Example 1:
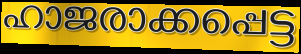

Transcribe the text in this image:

ഹാജരാക്കപ്പെട്ട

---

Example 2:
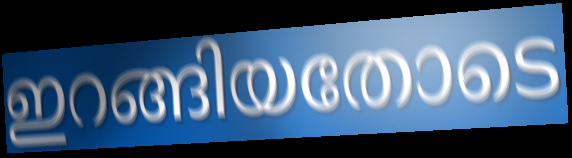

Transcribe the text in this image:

ഇറങ്ങിയതോടെ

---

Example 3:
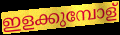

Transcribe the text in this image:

ഇളക്കുമ്പോള്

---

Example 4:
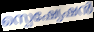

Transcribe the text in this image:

സ്പെഷ്യേഷൻ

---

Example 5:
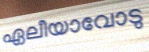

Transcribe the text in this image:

ഏലീയാവോടു